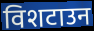
विशटाउन